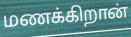
மணக்கிறான்